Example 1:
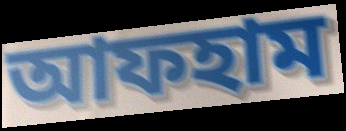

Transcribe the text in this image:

আফহাম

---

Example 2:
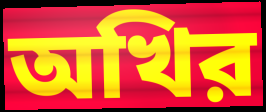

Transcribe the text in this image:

অখির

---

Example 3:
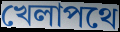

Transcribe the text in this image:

খেলাপথে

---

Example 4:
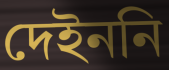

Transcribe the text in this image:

দেইননি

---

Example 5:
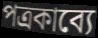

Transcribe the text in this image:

পত্রকাব্যে